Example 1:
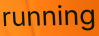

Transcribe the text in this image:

running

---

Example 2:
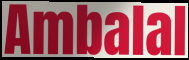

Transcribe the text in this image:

Ambalal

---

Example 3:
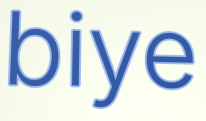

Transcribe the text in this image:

biye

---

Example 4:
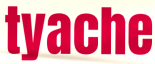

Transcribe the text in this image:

tyache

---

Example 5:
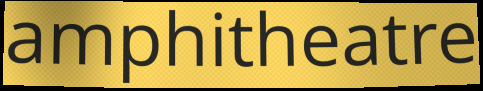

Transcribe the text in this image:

amphitheatre